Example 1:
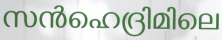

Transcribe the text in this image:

സൻഹെദ്രിമിലെ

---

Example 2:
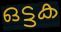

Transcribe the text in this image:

ഒട്ടക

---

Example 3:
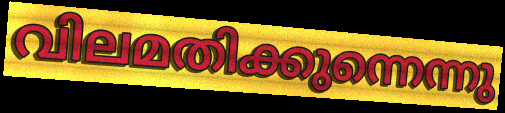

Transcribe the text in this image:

വിലമതിക്കുന്നെന്നു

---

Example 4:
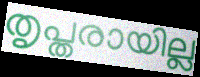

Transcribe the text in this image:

തൃപ്തരായില്ല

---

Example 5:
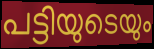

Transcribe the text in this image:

പട്ടിയുടെയും